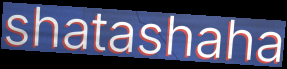
shatashaha